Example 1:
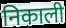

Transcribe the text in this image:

निकाली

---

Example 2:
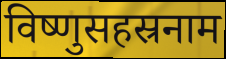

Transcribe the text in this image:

विष्णुसहस्रनाम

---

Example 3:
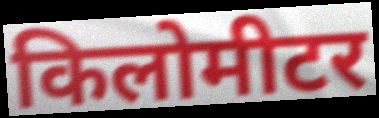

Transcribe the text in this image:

किलोमीटर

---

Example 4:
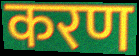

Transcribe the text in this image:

करण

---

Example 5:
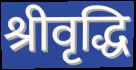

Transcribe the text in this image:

श्रीवृद्धि